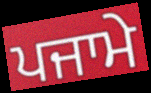
ਪਜਾਮੇ